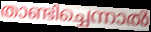
താണ്ടിച്ചെന്നാൽ